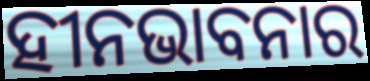
ହୀନଭାବନାର